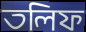
তলিফ